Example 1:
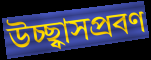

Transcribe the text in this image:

উচ্ছ্বাসপ্রবণ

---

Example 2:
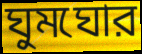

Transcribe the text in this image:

ঘুমঘোর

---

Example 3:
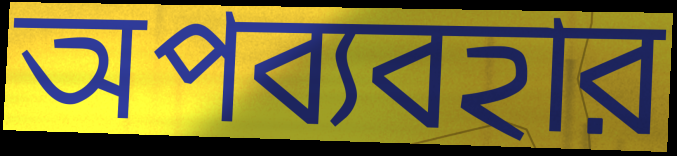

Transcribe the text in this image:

অপব্যবহার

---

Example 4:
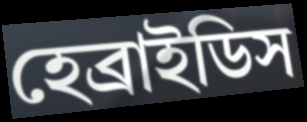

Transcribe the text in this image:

হেব্রাইডিস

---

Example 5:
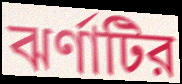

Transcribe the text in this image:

ঝর্ণাটির